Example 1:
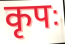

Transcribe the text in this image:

कृपः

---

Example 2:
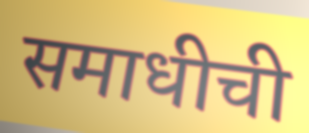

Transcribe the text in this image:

समाधीची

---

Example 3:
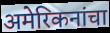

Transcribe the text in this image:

अमेरिकनांचा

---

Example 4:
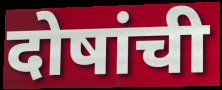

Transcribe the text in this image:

दोषांची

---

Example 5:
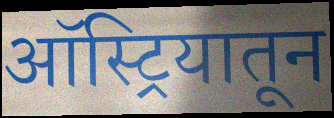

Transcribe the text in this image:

ऑस्ट्रियातून